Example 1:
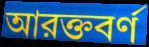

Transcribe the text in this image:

আরক্তবর্ণ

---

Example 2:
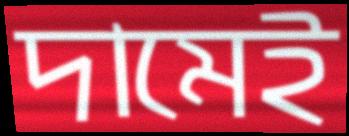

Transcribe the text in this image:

দামেই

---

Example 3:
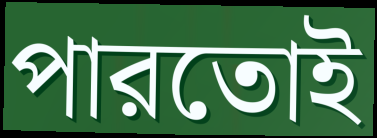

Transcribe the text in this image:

পারতোই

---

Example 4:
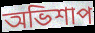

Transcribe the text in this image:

অভিশাপ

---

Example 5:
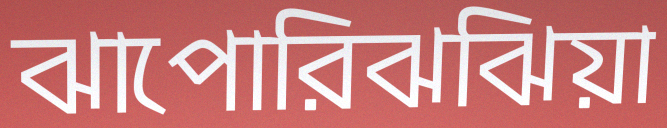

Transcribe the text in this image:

ঝাপোরিঝঝিয়া